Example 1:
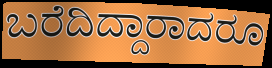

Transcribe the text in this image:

ಬರೆದಿದ್ದಾರಾದರೂ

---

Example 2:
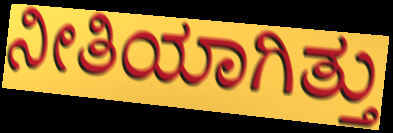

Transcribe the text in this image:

ನೀತಿಯಾಗಿತ್ತು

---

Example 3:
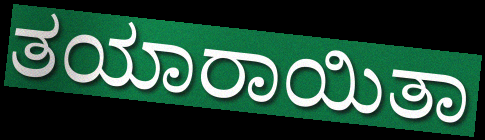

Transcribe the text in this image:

ತಯಾರಾಯಿತಾ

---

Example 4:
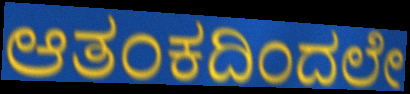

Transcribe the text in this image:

ಆತಂಕದಿಂದಲೇ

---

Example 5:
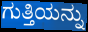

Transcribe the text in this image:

ಗುತ್ತಿಯನ್ನು